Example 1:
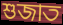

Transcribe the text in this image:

শুজাত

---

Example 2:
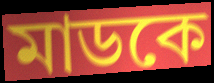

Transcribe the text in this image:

মাডকে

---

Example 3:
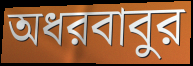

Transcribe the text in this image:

অধরবাবুর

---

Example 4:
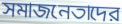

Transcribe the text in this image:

সমাজনেতাদের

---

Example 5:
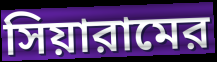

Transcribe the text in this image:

সিয়ারামের